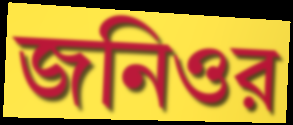
জনিওর